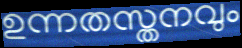
ഉന്നതസ്തനവും